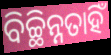
ବିଚ୍ଛିନ୍ନତାହିଁ